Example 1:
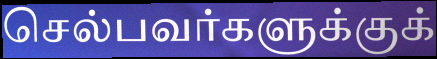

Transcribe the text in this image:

செல்பவர்களுக்குக்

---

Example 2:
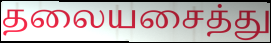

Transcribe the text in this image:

தலையசைத்து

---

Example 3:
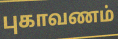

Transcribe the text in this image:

புகாவணம்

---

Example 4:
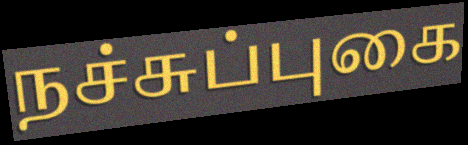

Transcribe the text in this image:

நச்சுப்புகை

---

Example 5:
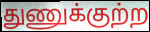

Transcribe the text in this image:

துணுக்குற்ற